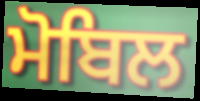
ਮੋਬਿਲ